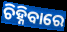
ଚିହ୍ନିବାରେ